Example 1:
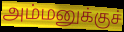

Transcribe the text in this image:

அம்மனுக்குச்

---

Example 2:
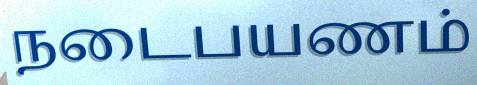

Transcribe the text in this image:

நடைபயணம்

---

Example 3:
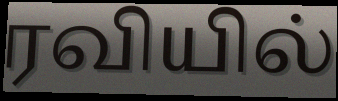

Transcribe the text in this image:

ரவியில்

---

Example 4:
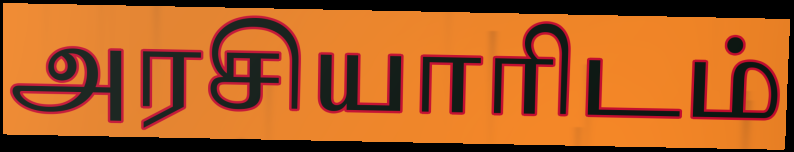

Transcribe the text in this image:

அரசியாரிடம்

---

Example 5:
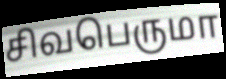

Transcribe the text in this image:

சிவபெருமா